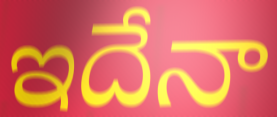
ఇదేనా